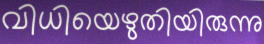
വിധിയെഴുതിയിരുന്നു